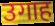
उगाह